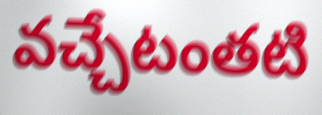
వచ్చేటంతటి